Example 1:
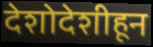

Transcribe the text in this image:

देशोदेशीहून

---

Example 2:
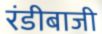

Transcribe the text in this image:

रंडीबाजी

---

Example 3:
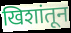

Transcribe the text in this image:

खिशांतून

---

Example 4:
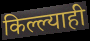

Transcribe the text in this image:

किल्ल्याही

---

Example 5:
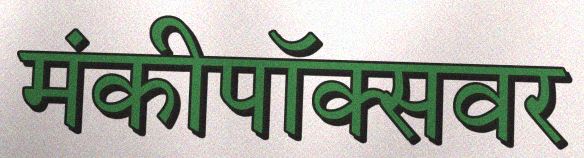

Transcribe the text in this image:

मंकीपॉक्सवर